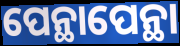
ପେନ୍ଥାପେନ୍ଥା